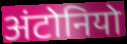
अंटोनियो